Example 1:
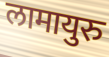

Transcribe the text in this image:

लामायुरु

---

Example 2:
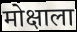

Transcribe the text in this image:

मोक्षाला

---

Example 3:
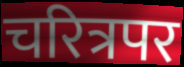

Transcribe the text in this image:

चरित्रपर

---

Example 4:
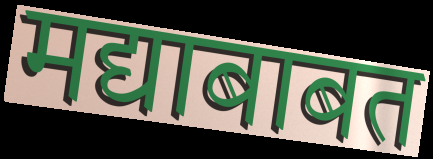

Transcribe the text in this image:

मद्याबाबत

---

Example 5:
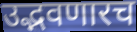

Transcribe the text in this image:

उद्भवणारच